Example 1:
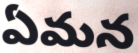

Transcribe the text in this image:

ఏమన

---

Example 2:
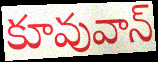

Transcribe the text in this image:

కూవువాన్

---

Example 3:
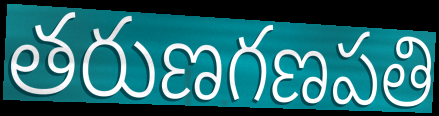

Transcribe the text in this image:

తరుణగణపతి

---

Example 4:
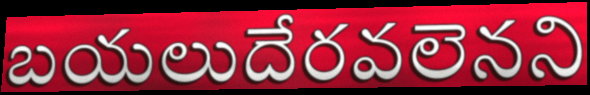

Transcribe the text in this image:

బయలుదేరవలెనని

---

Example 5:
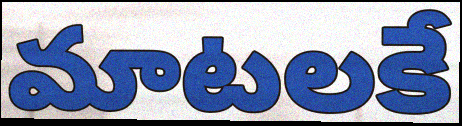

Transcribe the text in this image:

మాటలకే